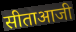
सीताआजी